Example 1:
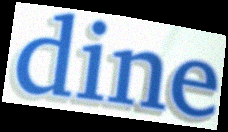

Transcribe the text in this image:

dine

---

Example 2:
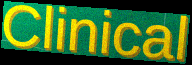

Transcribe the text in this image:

Clinical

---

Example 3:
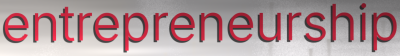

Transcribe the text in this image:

entrepreneurship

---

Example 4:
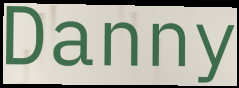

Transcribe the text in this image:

Danny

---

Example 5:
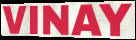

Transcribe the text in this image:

VINAY